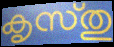
കൃസ്തു